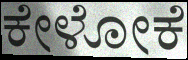
ಕೇಳೋಕೆ